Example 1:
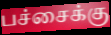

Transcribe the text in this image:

பச்சைக்கு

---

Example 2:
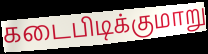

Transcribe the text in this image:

கடைபிடிக்குமாறு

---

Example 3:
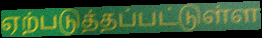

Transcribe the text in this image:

ஏற்படுத்தப்பட்டுள்ள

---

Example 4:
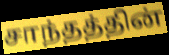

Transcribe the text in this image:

சாந்தத்தின்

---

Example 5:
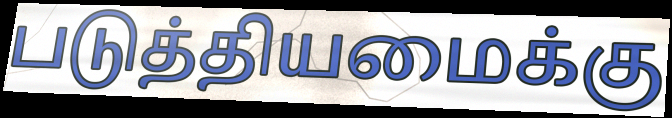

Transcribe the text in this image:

படுத்தியமைக்கு